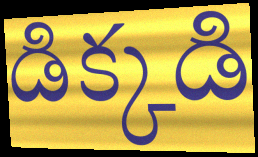
డిక్కడి